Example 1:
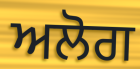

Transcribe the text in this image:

ਅਲੋਗ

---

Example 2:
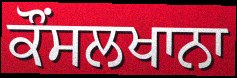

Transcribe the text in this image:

ਕੌਂਸਲਖਾਨਾ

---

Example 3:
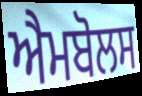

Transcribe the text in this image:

ਐਮਬੋਲਸ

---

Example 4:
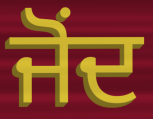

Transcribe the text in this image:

ਜੋਂਦ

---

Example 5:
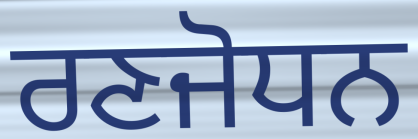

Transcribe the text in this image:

ਰਣਜੋਧਨ